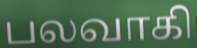
பலவாகி